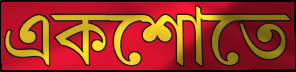
একশোতে